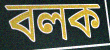
বলক